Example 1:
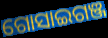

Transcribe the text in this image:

ଗୋସାଇଗଞ୍ଜ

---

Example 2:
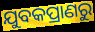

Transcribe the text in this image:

ଯୁବକପ୍ରାଣରୁ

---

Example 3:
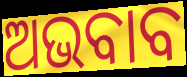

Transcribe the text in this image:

ଅଭବାବ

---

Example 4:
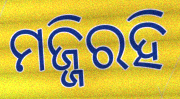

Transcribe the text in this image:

ମଜ୍ଜିରହି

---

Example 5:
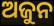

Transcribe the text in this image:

ଅଜୁନ